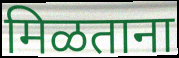
मिळताना